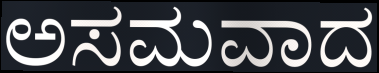
ಅಸಮವಾದ